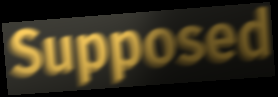
Supposed